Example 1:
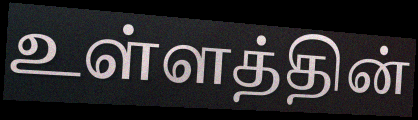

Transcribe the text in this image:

உள்ளத்தின்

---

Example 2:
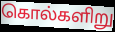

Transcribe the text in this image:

கொல்களிறு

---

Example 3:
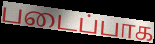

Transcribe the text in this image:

படைப்பாக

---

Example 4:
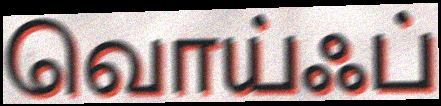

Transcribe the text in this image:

வொய்ஃப்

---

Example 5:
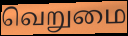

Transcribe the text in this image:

வெறுமை